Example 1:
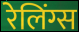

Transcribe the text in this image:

रेलिंग्स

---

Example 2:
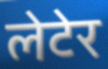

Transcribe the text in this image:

लेटेर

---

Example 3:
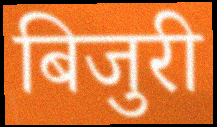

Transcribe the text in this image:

बिजुरी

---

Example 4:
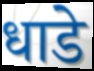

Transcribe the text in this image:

धाडे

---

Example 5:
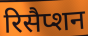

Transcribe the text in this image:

रिसैप्शन